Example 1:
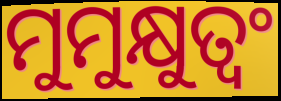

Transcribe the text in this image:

ମୁମୁକ୍ଷୁତ୍ୱଂ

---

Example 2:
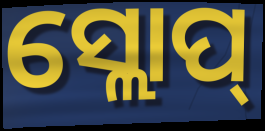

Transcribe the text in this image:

ସ୍ଲୋପ୍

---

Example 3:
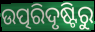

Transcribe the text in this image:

ଉତ୍ପରିଦୃଷ୍ଟିରୁ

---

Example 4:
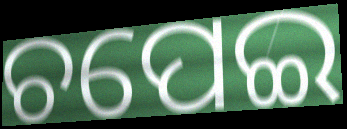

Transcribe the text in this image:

ଚପେଇ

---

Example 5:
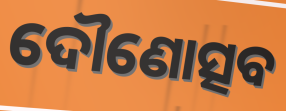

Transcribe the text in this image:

ଦୌଣୋତ୍ସବ